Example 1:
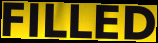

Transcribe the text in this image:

FILLED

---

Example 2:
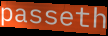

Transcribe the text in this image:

passeth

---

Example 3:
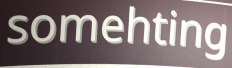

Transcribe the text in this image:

somehting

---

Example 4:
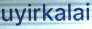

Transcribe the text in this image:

uyirkalai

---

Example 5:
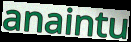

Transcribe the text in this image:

anaintu